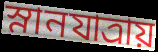
স্নানযাত্রায়